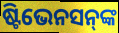
ଷ୍ଟିଭେନସନ୍‍ଙ୍କ